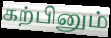
கற்பினும்